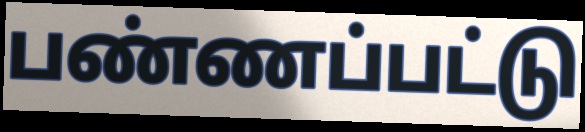
பண்ணப்பட்டு